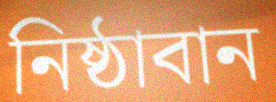
নিষ্ঠাবান